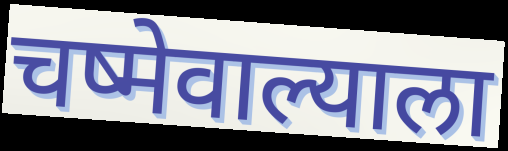
चष्मेवाल्याला